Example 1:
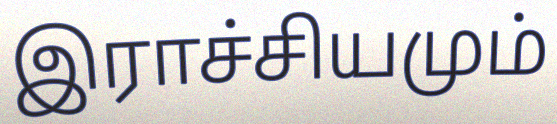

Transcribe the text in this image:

இராச்சியமும்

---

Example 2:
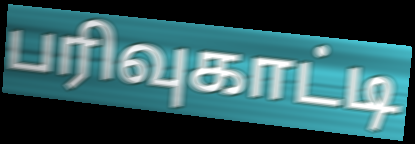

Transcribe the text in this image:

பரிவுகாட்டி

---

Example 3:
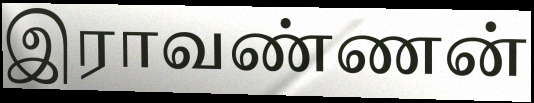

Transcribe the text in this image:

இராவண்ணன்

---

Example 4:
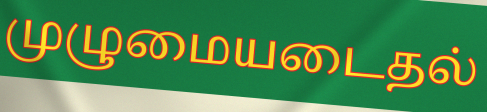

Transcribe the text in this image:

முழுமையடைதல்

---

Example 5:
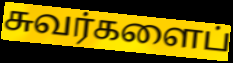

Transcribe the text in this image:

சுவர்களைப்